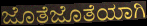
ಜೊತೆಜೊತೆಯಾಗಿ